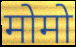
मोमो